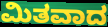
ಮಿತವಾದ